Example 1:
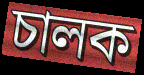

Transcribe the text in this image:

চালক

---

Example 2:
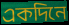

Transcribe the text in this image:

একদিনে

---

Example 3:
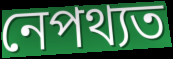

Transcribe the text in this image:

নেপথ্যত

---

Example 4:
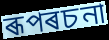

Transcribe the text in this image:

ৰূপৰচনা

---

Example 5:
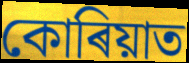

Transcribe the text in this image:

কোৰিয়াত